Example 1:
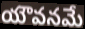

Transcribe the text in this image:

యౌవనమే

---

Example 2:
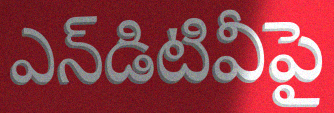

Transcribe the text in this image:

ఎన్‌డిటివీపై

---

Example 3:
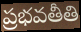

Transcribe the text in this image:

ప్రభవతీతి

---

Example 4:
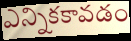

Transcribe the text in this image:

ఎన్నికకావడం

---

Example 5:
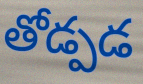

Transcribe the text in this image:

తోడ్పడ